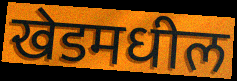
खेडमधील